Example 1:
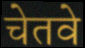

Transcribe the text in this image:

चेतवे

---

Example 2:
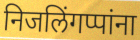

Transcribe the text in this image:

निजलिंगप्पांना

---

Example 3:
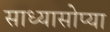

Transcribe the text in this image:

साध्यासोप्या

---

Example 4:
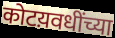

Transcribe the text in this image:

कोटय़वधींच्या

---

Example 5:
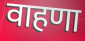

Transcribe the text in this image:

वाहणा